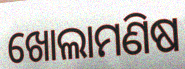
ଖୋଲାମଣିଷ